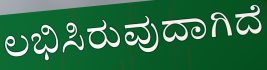
ಲಭಿಸಿರುವುದಾಗಿದೆ